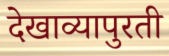
देखाव्यापुरती